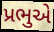
પ્રભુએ